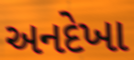
અનદેખા